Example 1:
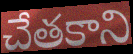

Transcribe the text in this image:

చేతకాని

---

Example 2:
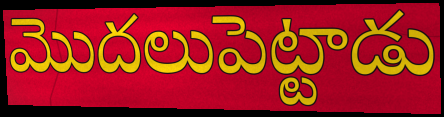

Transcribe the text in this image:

మొదలుపెట్టాడు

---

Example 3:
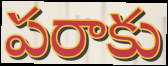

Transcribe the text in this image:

పరాకు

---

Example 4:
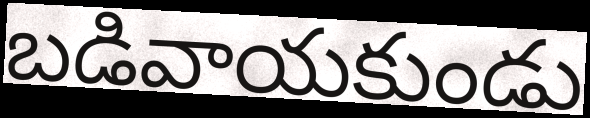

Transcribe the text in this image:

బడివాయకుండు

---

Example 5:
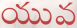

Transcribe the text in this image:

యువ